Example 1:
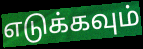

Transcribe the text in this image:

எடுக்கவும்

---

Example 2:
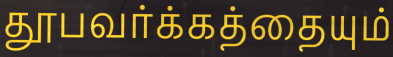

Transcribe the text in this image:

தூபவர்க்கத்தையும்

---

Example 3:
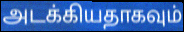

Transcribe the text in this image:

அடக்கியதாகவும்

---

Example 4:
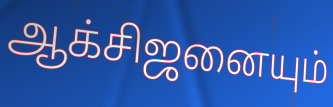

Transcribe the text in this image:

ஆக்சிஜனையும்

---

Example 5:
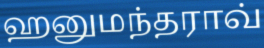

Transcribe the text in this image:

ஹனுமந்தராவ்